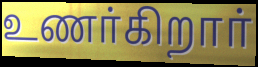
உணர்கிறார்